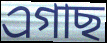
এগাছ